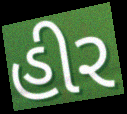
હીર